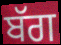
ਬੱਗ